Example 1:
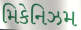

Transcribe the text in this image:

મિકેનિઝમ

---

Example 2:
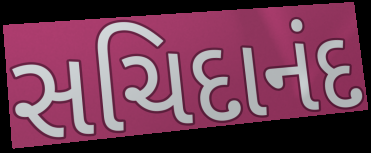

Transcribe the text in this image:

સચિદાનંદ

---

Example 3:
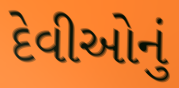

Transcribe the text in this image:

દેવીઓનું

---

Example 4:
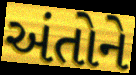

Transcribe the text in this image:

અંતોને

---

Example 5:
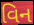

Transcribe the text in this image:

વિન